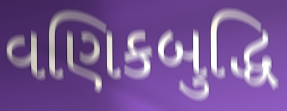
વણિકબુદ્ધિ